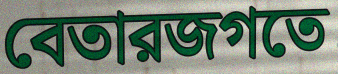
বেতারজগতে